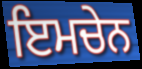
ਇਮਚੇਨ